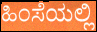
ಹಿಂಸೆಯಲ್ಲಿ